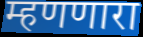
म्हणणारा